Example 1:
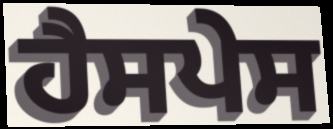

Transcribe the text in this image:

ਹੈਸਪੇਸ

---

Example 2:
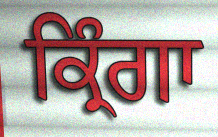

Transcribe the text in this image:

ਕ੍ਰਿੰਗਾ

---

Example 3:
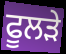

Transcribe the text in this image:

ਫੂਲੜੇ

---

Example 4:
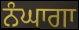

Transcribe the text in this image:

ਨੰਘਾਗਾ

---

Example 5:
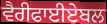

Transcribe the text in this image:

ਵੈਰੀਫਾਈਏਬਲ